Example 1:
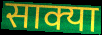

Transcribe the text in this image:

साक्या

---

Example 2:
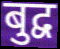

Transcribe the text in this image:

बुद्व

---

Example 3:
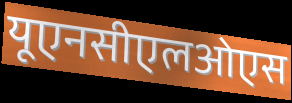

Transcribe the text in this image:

यूएनसीएलओएस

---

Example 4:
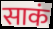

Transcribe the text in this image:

साकं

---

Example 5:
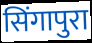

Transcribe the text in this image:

सिंगापुरा